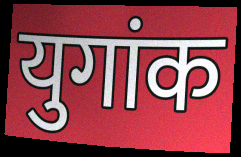
युगांक